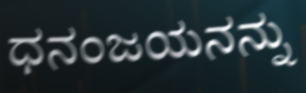
ಧನಂಜಯನನ್ನು